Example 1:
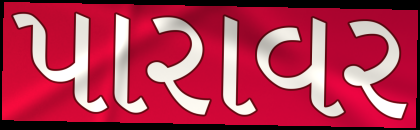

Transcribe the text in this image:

પારાવર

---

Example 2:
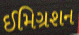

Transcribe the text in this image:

ઈમિગ્રશન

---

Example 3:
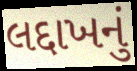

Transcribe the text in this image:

લદ્દાખનું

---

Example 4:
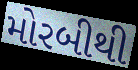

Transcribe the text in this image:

મોરબીથી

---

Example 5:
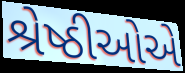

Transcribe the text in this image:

શ્રેષ્ઠીઓએ